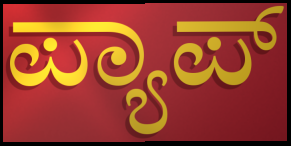
ಪ್ಯಾಪ್